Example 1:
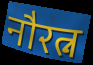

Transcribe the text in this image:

नौरत्न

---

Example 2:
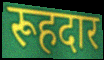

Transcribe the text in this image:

रूहदार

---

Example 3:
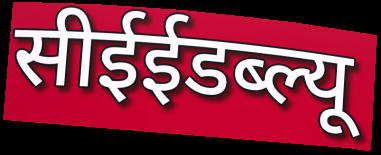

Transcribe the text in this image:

सीईईडब्ल्यू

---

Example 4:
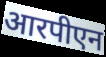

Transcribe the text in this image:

आरपीएन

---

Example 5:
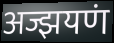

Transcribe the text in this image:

अज्झयणं